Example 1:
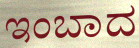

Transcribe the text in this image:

ಇಂಬಾದ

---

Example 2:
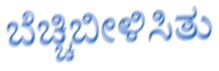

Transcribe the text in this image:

ಬೆಚ್ಚಿಬೀಳಿಸಿತು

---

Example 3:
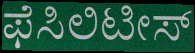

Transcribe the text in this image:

ಫೆಸಿಲಿಟೀಸ್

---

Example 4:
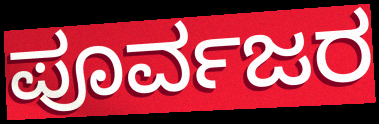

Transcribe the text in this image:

ಪೂರ್ವಜರ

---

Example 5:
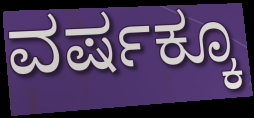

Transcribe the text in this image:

ವರ್ಷಕ್ಕೂ